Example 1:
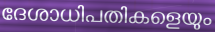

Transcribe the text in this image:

ദേശാധിപതികളെയും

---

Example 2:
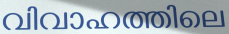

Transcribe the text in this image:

വിവാഹത്തിലെ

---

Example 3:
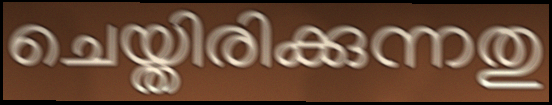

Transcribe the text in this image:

ചെയ്തിരിക്കുന്നതു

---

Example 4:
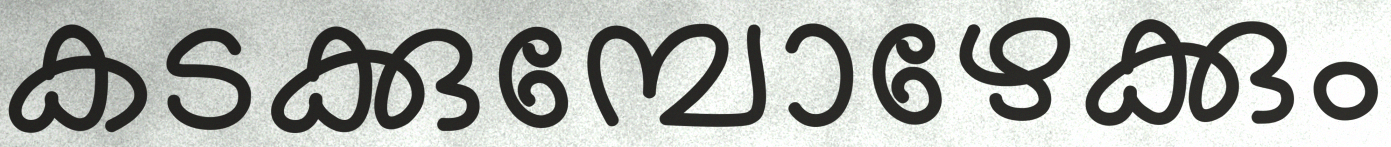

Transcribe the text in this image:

കടക്കുമ്പോഴേക്കും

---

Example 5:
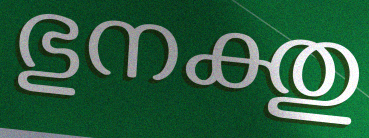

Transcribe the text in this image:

ഭുനക്തു